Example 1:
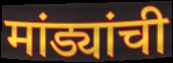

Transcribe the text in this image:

मांड्यांची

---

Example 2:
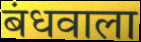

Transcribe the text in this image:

बंधवाला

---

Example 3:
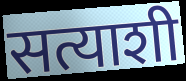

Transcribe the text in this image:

सत्याशी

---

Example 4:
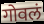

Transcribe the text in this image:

गोवलं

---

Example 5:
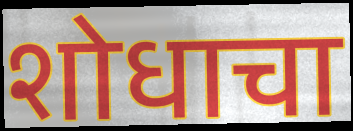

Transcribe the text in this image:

शोधाचा